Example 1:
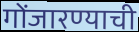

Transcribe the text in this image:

गोंजारण्याची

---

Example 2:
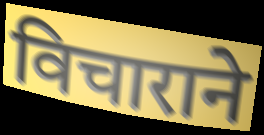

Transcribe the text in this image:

विचाराने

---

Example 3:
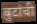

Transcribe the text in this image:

बुटांची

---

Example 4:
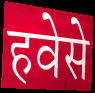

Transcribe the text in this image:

हवेसे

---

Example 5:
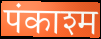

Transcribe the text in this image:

पंकाश्म